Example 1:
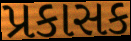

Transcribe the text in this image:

પ્રકાસક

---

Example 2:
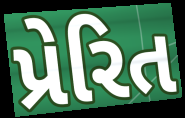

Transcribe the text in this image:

પ્રેરિત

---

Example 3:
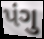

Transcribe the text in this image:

પંગુ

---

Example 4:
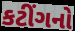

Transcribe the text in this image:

કટીંગનો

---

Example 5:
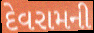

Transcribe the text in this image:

દેવરામની